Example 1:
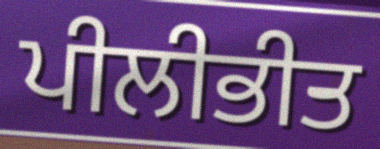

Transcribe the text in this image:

ਪੀਲੀਭੀਤ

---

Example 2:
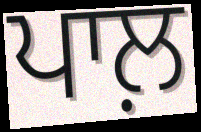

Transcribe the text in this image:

ਪਾਲ਼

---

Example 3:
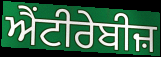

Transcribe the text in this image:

ਐਂਟੀਰੇਬੀਜ਼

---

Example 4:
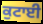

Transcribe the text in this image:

ਕੁਟਾਈ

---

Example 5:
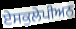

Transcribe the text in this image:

ਏਸਕੁਲੇਪੀਅਨ